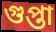
গুপ্তা